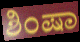
ಶಿಂಷಾ